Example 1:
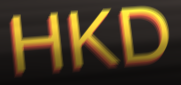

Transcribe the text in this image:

HKD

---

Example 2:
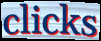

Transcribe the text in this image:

clicks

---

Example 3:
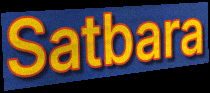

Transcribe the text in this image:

Satbara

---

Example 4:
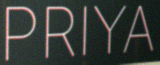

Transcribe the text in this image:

PRIYA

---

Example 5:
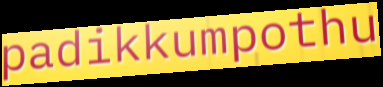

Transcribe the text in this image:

padikkumpothu